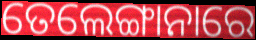
ତେଲେଙ୍ଗାନାରେ